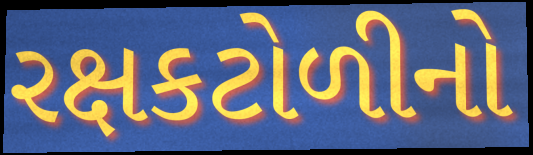
રક્ષકટોળીનો